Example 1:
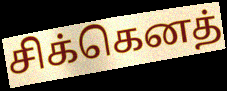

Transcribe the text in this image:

சிக்கெனத்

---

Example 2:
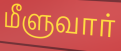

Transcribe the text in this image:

மீளுவார்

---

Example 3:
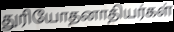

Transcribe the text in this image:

துரியோதனாதியர்கள்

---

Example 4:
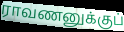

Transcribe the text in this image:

ராவணனுக்குப்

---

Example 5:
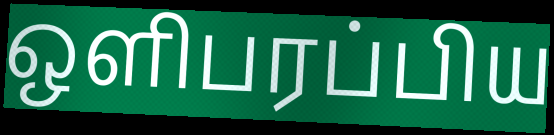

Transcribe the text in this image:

ஒளிபரப்பிய